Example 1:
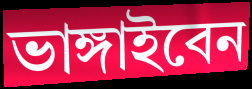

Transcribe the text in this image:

ভাঙ্গাইবেন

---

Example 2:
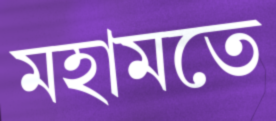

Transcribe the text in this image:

মহামতে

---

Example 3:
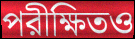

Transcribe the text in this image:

পরীক্ষিতও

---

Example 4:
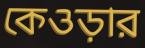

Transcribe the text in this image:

কেওড়ার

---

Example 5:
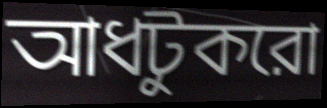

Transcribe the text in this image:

আধটুকরো